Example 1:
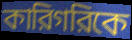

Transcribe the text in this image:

কারিগরিকে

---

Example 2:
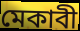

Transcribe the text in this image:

মেকাবী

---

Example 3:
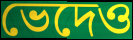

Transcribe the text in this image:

ভেদেও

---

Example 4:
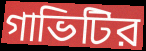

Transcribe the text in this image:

গাভিটির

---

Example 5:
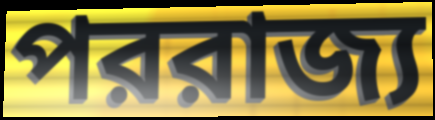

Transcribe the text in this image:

পররাজ্য